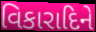
વિકારાદિને